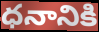
ధనానికి